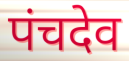
पंचदेव